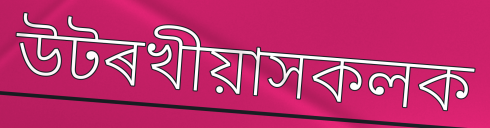
উটৰখীয়াসকলক